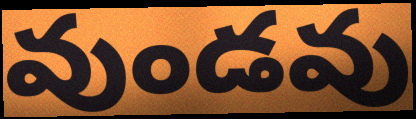
వుండవు